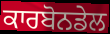
ਕਾਰਬੋਨਡੇਲ